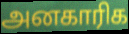
அனகாரிக